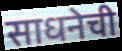
साधनेची